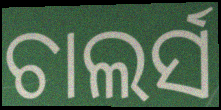
ଚାଲର୍ସ